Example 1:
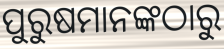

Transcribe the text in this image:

ପୁରୁଷମାନଙ୍କଠାରୁ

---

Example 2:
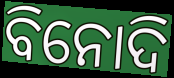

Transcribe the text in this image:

ବିନୋଦି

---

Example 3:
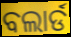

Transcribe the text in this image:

ବଲାର୍ଡ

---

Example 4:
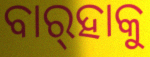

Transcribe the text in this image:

ବାର୍‍ହାକୁ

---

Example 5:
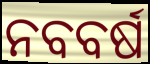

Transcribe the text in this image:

ନବବର୍ଷ